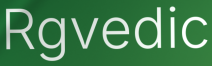
Rgvedic